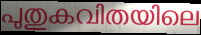
പുതുകവിതയിലെ